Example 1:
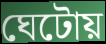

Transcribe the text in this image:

ঘেটোয়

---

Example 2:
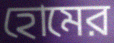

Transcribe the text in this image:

হোমের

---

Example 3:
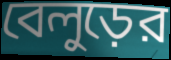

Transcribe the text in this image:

বেলুড়ের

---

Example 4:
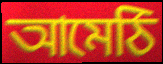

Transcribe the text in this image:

আমেঠি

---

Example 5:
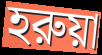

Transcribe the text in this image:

হরুয়া